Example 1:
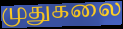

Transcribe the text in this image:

முதுகலை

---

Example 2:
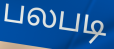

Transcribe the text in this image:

பலபடி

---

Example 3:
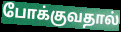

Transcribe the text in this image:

போக்குவதால்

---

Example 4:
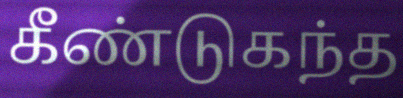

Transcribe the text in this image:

கீண்டுகந்த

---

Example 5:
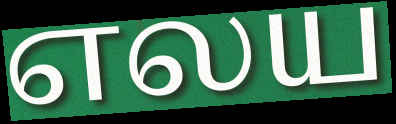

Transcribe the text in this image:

எலய